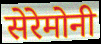
सेरेमोनी